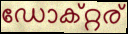
ഡോക്റ്റര്